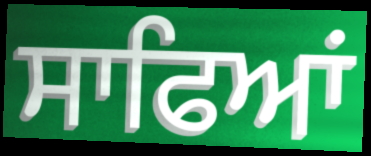
ਸਾਫਿਆਂ